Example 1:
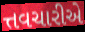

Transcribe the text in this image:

ત્તવચારીએ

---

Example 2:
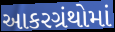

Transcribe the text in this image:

આકરગ્રંથોમાં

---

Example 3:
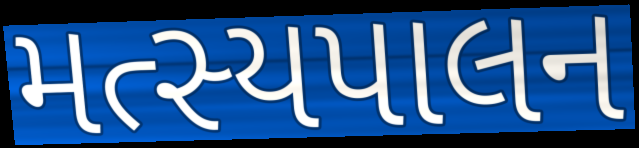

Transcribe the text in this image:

મત્સ્યપાલન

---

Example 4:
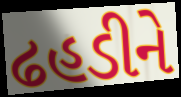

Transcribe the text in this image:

ઢહડીને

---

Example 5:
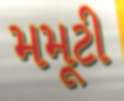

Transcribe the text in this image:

મમૂટી